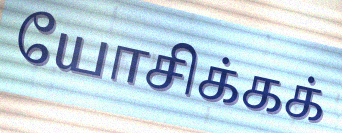
யோசிக்கக்